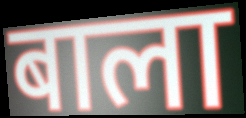
बाला